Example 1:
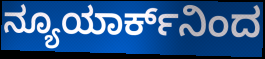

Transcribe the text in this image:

ನ್ಯೂಯಾರ್ಕ್‌ನಿಂದ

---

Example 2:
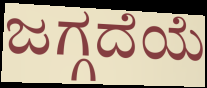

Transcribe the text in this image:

ಜಗ್ಗದೆಯೆ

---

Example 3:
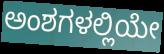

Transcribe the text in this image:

ಅಂಶಗಳಲ್ಲಿಯೇ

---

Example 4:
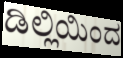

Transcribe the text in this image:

ಡಿಲ್ಲಿಯಿಂದ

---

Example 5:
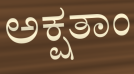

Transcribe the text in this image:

ಅಕ್ಷತಾಂ